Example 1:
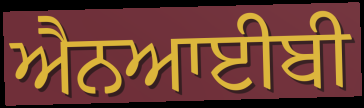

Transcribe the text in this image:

ਐਨਆਈਬੀ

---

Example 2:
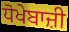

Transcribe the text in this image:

ਧੋਖੇਬਾਜ਼ੀ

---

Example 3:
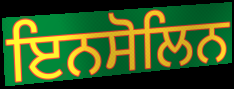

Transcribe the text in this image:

ਇਨਸੋਲਿਨ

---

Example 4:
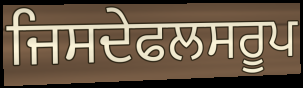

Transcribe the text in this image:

ਜਿਸਦੇਫਲਸਰੂਪ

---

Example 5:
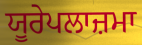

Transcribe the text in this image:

ਯੂਰੇਪਲਾਜ਼ਮਾ